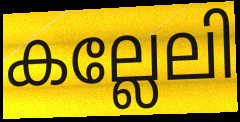
കല്ലേലി